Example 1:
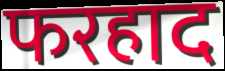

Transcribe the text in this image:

फरहाद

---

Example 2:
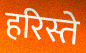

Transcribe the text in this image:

हरिस्ते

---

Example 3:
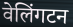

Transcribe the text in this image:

वेलिंगटन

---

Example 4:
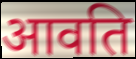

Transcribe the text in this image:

आवति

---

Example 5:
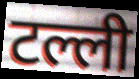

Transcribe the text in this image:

टल्ली